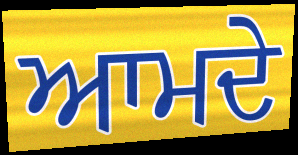
ਆਮਦੇ